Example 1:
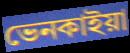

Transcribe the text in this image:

ভেনকাইয়া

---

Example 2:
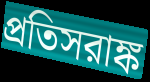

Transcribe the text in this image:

প্রতিসরাঙ্ক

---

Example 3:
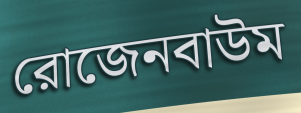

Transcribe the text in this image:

রোজেনবাউম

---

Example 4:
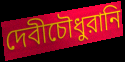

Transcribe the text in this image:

দেবীচৌধুরানি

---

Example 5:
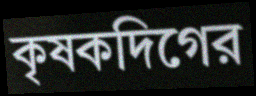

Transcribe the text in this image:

কৃষকদিগের